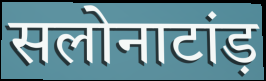
सलोनाटांड़